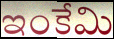
ఇంకేమి